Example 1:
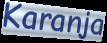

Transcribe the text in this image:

Karanja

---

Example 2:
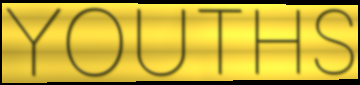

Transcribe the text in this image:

YOUTHS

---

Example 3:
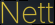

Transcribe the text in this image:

Nett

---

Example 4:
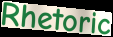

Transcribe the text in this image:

Rhetoric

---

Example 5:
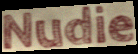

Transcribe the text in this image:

Nudie